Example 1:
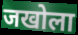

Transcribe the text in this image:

जखोला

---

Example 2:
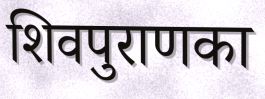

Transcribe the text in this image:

शिवपुराणका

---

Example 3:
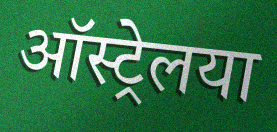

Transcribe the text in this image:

ऑस्ट्रेलया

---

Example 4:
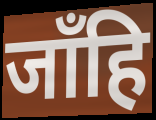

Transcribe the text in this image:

जाँहि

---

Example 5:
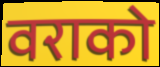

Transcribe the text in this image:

वराको